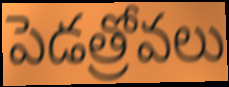
పెడత్రోవలు